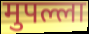
मुपल्ला